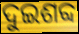
ଦୁଇଶବ୍ଦ